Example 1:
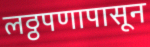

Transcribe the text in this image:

लठ्ठपणापासून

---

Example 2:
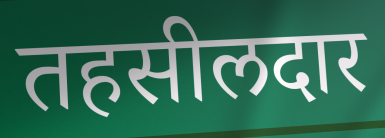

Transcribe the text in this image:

तहसीलदार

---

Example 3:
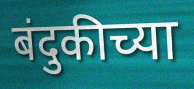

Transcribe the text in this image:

बंदुकीच्या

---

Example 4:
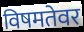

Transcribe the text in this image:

विषमतेवर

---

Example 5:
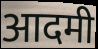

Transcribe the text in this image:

आदमी